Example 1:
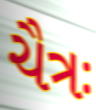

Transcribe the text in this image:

ચૈત્રઃ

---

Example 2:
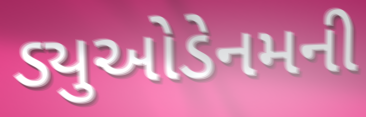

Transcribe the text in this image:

ડ્યુઓડેનમની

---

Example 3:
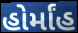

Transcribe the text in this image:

હોર્માંહ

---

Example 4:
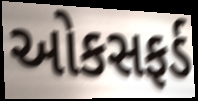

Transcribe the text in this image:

ઓકસફર્ડ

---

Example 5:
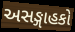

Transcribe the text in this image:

અસઙ્ગાહકો